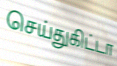
செய்துகிட்டா